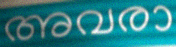
അവരാ